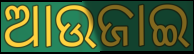
ଆଉଜାଇ